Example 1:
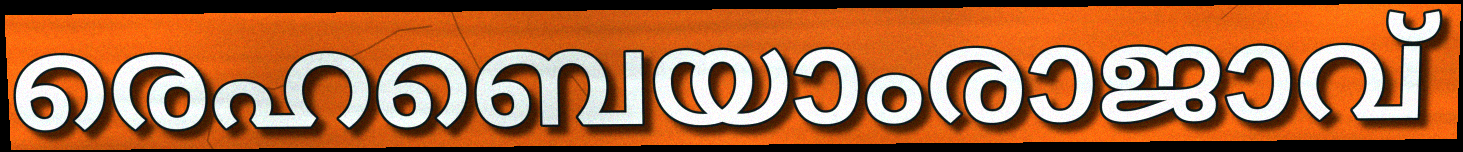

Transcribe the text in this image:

രെഹബെയാംരാജാവ്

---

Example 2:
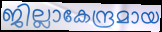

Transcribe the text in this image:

ജില്ലാകേന്ദ്രമായ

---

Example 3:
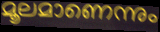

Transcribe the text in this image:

മൂലമാണെന്നും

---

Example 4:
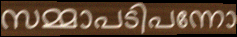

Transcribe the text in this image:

സമ്മാപടിപന്നോ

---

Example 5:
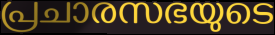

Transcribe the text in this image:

പ്രചാരസഭയുടെ